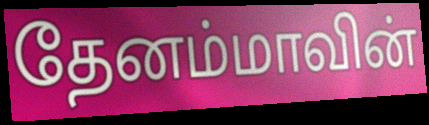
தேனம்மாவின்